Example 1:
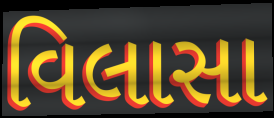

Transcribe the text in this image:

વિલાસા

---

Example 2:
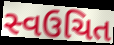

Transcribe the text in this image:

સ્વઉચિત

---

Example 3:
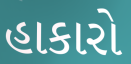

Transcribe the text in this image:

હાકારો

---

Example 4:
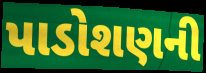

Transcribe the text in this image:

પાડોશણની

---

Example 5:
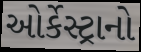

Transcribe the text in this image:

ઓર્કેસ્ટ્રાનો